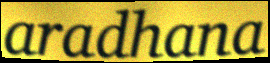
aradhana